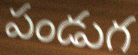
పండుగ